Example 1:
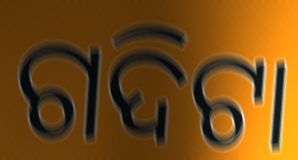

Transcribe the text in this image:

ଗଦିଟା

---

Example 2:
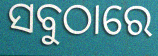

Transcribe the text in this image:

ସବୁଠାରେ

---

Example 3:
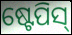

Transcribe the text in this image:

ଷ୍ଟେପିସ୍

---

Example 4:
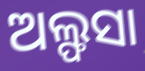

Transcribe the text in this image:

ଅଲ୍ଫସା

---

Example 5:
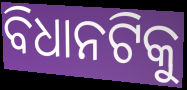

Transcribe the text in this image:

ବିଧାନଟିକୁ